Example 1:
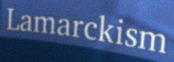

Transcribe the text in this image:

Lamarckism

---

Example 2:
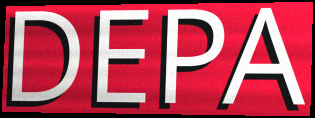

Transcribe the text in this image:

DEPA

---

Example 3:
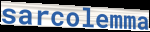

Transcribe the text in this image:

sarcolemma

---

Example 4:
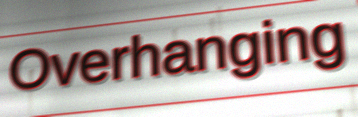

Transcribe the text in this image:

Overhanging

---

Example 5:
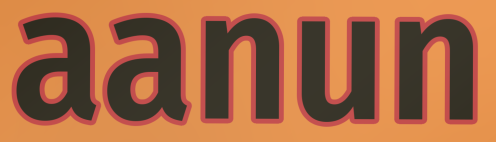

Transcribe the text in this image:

aanun